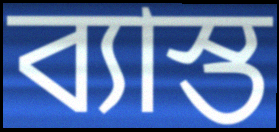
ব্যাস্ত